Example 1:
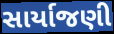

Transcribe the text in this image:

સાર્યાજણી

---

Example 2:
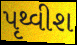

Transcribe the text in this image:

પૃથ્વીશ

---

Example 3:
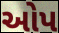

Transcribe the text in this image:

ઓપ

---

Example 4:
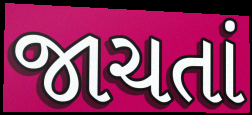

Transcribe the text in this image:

જાચતાં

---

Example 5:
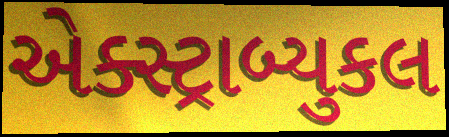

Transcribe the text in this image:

એક્સ્ટ્રાબ્યુકલ